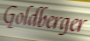
Goldberger